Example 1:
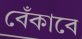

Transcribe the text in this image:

বেঁকাবে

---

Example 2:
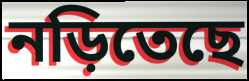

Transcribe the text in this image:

নড়িতেছে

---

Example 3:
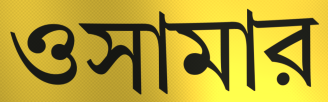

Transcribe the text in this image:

ওসামার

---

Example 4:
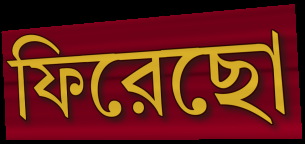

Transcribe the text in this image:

ফিরেছো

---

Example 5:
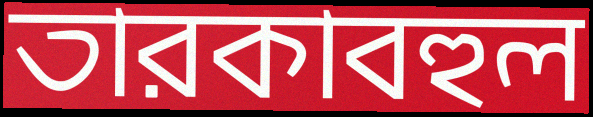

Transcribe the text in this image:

তারকাবহুল